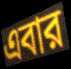
এবার